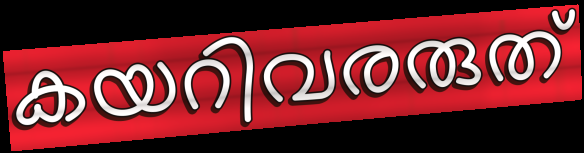
കയറിവരരുത്